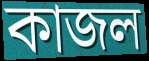
কাজল